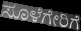
ಸೂಳೆಗೇರಿಗೆ